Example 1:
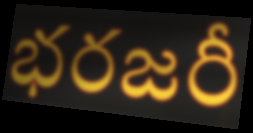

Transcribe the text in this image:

భరజరీ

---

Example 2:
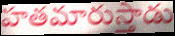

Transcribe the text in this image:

హతమారుస్తాడు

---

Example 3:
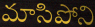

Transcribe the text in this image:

మాసిపోని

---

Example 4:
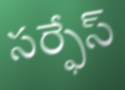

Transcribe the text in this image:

సర్ఫేస్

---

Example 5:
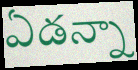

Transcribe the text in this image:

ఏడన్నా